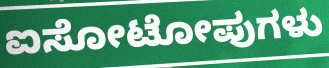
ಐಸೋಟೋಪುಗಳು